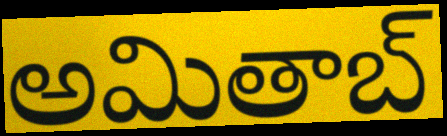
అమితాబ్